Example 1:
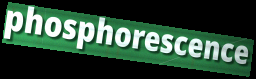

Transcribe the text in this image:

phosphorescence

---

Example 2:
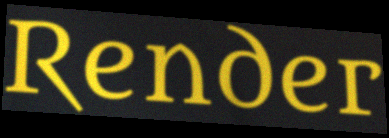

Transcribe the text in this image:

Render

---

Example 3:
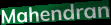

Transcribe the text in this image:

Mahendran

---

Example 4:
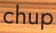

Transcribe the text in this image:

chup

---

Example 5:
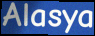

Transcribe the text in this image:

Alasya